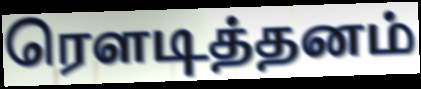
ரௌடித்தனம்